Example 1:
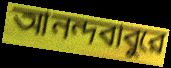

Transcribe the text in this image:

আনন্দবাবুৱে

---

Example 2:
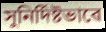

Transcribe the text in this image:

সুনিৰ্দিষ্টভাৱে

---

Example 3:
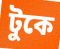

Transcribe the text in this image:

টুকে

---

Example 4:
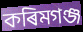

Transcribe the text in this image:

কৰিমগঞ্জ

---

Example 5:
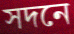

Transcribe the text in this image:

সদনে